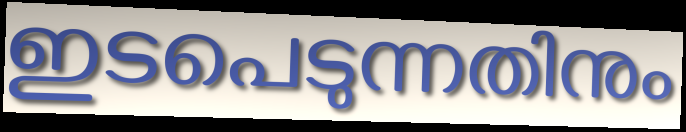
ഇടപെടുന്നതിനും